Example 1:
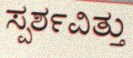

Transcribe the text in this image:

ಸ್ಪರ್ಶವಿತ್ತು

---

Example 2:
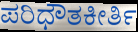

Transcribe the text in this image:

ಪರಿಧೌತಕೀರ್ತಿ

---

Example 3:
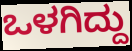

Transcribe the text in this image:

ಒಳಗಿದ್ದು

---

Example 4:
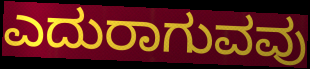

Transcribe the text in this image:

ಎದುರಾಗುವವು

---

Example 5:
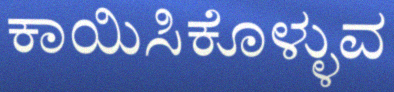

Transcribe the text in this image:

ಕಾಯಿಸಿಕೊಳ್ಳುವ